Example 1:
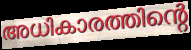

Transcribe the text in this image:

അധികാരത്തിന്റെ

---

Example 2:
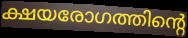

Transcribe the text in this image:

ക്ഷയരോഗത്തിന്റെ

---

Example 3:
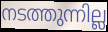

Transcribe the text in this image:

നടത്തുന്നില്ല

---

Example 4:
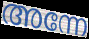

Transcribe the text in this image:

അന്നേ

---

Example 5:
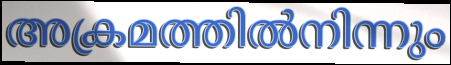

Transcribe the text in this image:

അക്രമത്തിൽനിന്നും